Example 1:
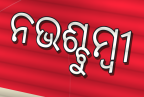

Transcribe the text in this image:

ନଭଶ୍ଚୁମ୍ବୀ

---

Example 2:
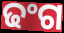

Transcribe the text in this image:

ଢଂଗ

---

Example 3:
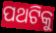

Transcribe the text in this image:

ପଥଟିକୁ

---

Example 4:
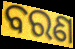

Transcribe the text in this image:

ବରଣ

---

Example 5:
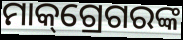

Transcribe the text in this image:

ମାକ୍‌ଗ୍ରେଗରଙ୍କ